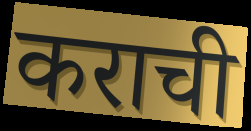
कराची